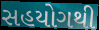
સહયોગથી